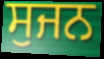
ਸੁਜਨ